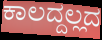
ಕಾಲದ್ದಲ್ಲದ